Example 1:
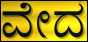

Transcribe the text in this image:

ವೇದ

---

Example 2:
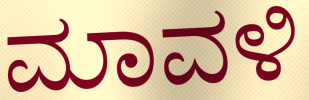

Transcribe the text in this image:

ಮಾವಳಿ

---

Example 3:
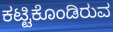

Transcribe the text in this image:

ಕಟ್ಟಿಕೊಂಡಿರುವ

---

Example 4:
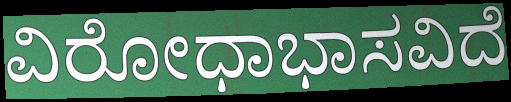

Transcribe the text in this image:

ವಿರೋಧಾಭಾಸವಿದೆ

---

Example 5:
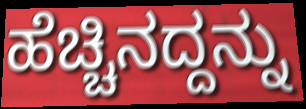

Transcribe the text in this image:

ಹೆಚ್ಚಿನದ್ದನ್ನು